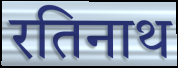
रतिनाथ